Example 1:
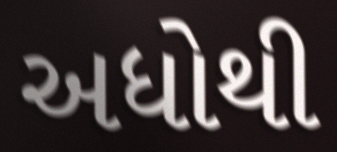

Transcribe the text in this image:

અધોથી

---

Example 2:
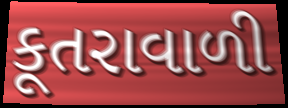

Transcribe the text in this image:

કૂતરાવાળી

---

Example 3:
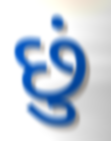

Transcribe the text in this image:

છું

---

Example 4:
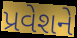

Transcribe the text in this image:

પ્રવેશને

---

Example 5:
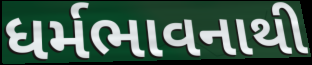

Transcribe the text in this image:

ધર્મભાવનાથી